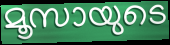
മൂസായുടെ